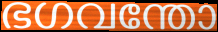
ഭഗവന്തോ